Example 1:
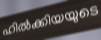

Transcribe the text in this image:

ഹിൽക്കിയയുടെ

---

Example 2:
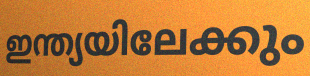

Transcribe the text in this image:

ഇന്ത്യയിലേക്കും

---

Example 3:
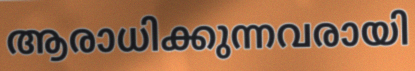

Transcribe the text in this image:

ആരാധിക്കുന്നവരായി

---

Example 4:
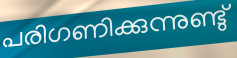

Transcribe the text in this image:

പരിഗണിക്കുന്നുണ്ടു്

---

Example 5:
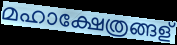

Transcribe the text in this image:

മഹാക്ഷേത്രങ്ങള്